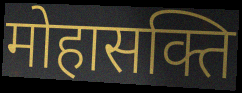
मोहासक्ति